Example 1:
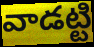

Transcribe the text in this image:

వాడట్టి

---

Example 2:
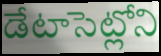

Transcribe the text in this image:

డేటాసెట్లోని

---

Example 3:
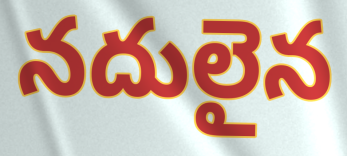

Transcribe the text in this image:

నదులైన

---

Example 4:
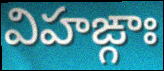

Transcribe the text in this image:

విహఙ్గాః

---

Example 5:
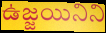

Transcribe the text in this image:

ఉజ్జయినిని